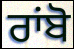
ਰਾਂਬੋ